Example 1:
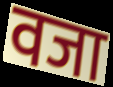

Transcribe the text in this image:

वजा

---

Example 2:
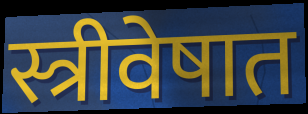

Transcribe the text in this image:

स्त्रीवेषात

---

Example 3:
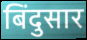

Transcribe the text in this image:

बिंदुसार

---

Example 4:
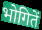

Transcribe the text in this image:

भोगितें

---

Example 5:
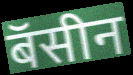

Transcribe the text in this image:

बॅसीन